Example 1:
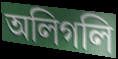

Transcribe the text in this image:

অলিগলি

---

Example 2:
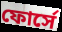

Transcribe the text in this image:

ফোর্সে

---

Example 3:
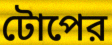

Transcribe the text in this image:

টোপের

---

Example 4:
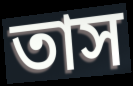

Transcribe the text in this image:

তাস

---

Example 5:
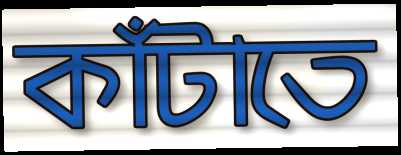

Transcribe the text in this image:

কাঁটাতে